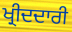
ਖ੍ਰੀਦਦਾਰੀ